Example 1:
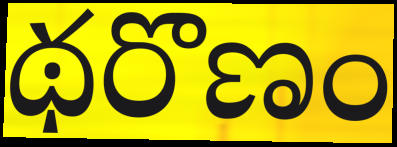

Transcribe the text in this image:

థరొణం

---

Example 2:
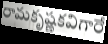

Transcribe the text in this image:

రామకృష్ణకవిగారే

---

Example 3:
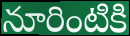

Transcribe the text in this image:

నూరింటికి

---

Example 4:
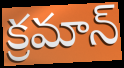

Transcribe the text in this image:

క్రమాన్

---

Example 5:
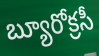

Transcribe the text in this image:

బ్యూరోక్రసీ